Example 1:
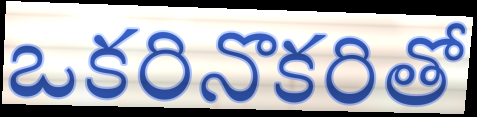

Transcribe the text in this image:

ఒకరినొకరితో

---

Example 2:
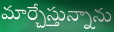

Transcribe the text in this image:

మార్చేస్తున్నాను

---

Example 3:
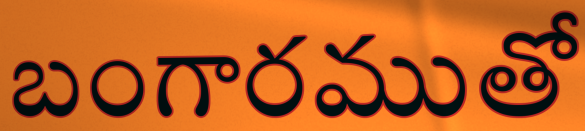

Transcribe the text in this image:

బంగారముతో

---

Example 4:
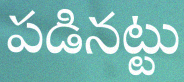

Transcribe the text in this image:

పడినట్టు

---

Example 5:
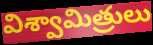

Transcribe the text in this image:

విశ్వామిత్రులు